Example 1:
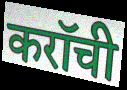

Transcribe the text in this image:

करॉची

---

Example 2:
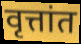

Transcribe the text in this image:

वृत्तांत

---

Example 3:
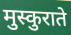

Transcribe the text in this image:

मुस्कुराते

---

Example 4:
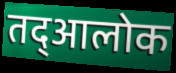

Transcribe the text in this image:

तद्आलोक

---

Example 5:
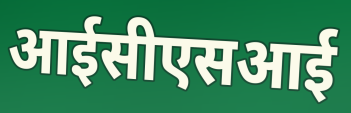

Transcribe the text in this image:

आईसीएसआई